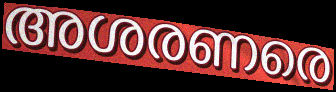
അശരണരെ